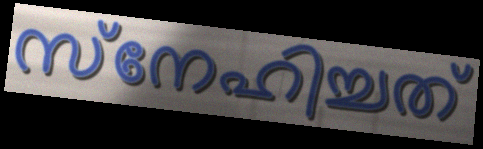
സ്‌നേഹിച്ചത്